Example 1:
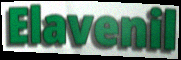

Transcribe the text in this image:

Elavenil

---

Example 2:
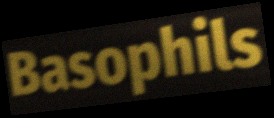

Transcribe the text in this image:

Basophils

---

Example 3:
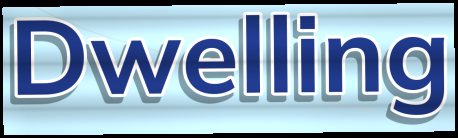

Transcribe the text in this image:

Dwelling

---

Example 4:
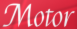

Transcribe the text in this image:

Motor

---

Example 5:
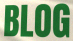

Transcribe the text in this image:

BLOG